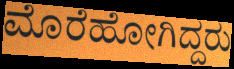
ಮೊರೆಹೋಗಿದ್ದರು